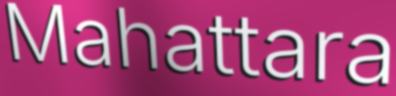
Mahattara